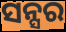
ସନ୍ସର